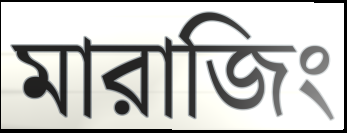
মারাজিং